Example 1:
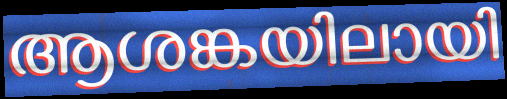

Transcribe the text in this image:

ആശങ്കയിലായി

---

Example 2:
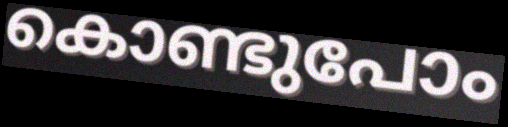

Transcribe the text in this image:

കൊണ്ടുപോം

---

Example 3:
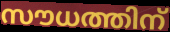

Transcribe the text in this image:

സൗധത്തിന്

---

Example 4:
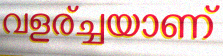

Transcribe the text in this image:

വളര്ച്ചയാണ്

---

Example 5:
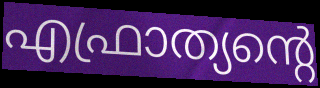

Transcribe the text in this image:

എഫ്രാത്യന്റെ